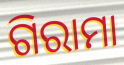
ଗିରାମା